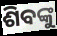
ଶିବଙ୍କୁ